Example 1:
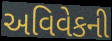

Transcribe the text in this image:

અવિવેકની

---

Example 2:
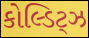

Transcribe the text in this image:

કોલ્ડિટ્ઝ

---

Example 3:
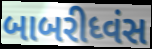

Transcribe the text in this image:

બાબરીધ્વંસ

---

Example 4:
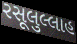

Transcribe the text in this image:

રસૂલુલ્લાહ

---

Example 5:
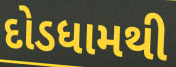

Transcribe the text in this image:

દોડધામથી